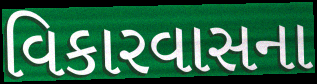
વિકારવાસના